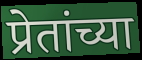
प्रेतांच्या